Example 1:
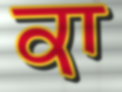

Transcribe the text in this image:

ਕਾ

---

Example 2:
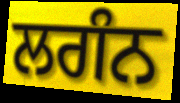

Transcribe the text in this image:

ਲਗੰਨ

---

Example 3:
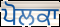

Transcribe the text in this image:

ਪੋਲਕਾ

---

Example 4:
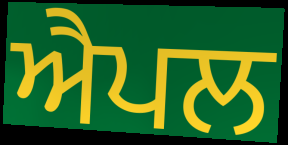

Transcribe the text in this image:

ਐਪਲ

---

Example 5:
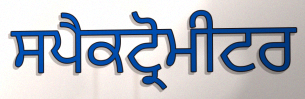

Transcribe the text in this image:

ਸਪੈਕਟ੍ਰੋਮੀਟਰ